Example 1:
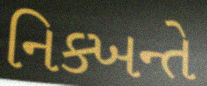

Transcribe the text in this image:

નિક્ખન્તે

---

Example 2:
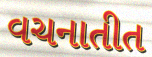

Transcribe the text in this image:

વચનાતીત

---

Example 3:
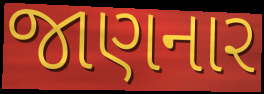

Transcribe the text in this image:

જાણનાર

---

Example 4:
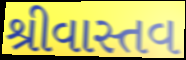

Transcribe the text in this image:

શ્રીવાસ્તવ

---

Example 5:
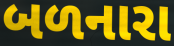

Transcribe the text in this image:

બળનારા